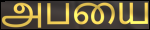
அபயை